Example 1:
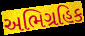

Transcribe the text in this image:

અભિગ્રહિક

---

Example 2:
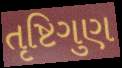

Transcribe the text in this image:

તૃષ્ટિગુણ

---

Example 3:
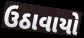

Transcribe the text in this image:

ઉઠાવાયો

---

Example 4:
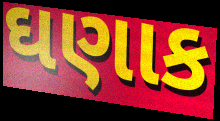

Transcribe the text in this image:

ઘણાક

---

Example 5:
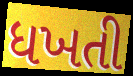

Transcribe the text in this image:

ધખતી